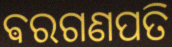
ଵରଗଣପତି